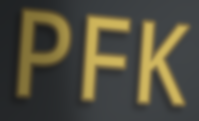
PFK